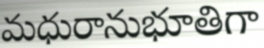
మధురానుభూతిగా